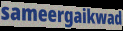
sameergaikwad